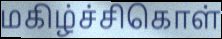
மகிழ்ச்சிகொள்